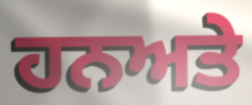
ਹਨਅਤੇ